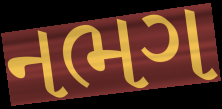
નભગ